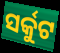
ସର୍କୁଟ